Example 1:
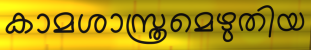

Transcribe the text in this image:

കാമശാസ്ത്രമെഴുതിയ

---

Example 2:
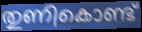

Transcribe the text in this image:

തുണികൊണ്ട്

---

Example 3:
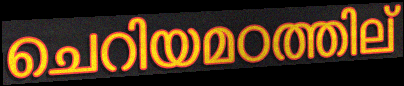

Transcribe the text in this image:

ചെറിയമഠത്തില്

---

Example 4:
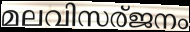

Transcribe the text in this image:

മലവിസര്ജനം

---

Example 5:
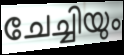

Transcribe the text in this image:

ചേച്ചിയും